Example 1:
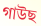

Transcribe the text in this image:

গাউছ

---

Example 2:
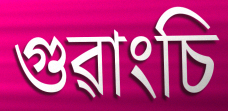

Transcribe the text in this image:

গুৱাংচি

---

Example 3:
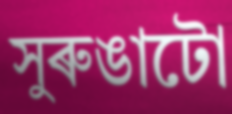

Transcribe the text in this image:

সুৰুঙাটো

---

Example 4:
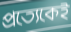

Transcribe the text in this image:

প্ৰত্যেকেই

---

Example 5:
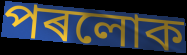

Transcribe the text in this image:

পৰলোক